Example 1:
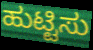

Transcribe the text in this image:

ಹುಟ್ಟಿಸು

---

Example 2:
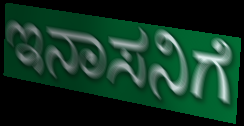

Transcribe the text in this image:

ಇನಾಸನಿಗೆ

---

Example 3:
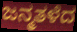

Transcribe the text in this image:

ಜನ್ಮತಳೆದ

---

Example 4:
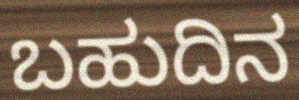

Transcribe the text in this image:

ಬಹುದಿನ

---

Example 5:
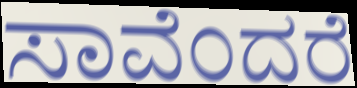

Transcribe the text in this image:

ಸಾವೆಂದರೆ